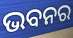
ଭବନର